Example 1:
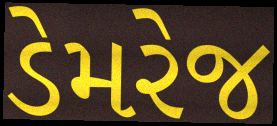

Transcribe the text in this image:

ડેમરેજ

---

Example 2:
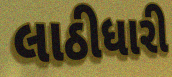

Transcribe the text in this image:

લાઠીધારી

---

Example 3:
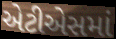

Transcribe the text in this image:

એટીએસમાં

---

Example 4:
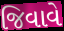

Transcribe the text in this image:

જિવાવે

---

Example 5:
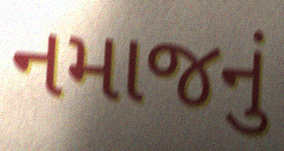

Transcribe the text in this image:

નમાજનું